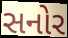
સનોર